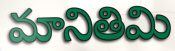
మానితిమి